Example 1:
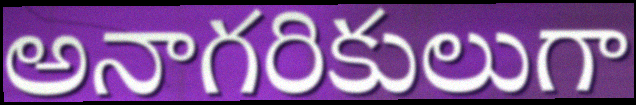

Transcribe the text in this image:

అనాగరికులుగా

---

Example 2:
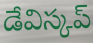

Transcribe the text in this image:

డేవిస్కప్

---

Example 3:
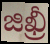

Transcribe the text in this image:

జిఖ్రీ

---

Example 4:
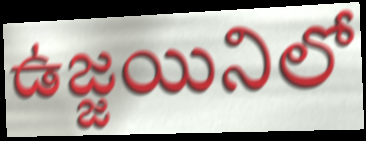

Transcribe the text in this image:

ఉజ్జయినిలో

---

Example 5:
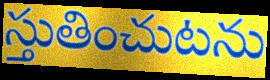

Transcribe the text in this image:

స్తుతించుటను